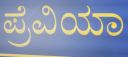
ಪ್ರೆವಿಯಾ